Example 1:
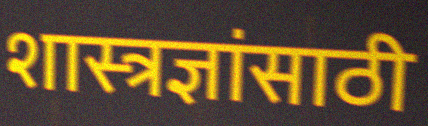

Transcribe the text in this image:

शास्त्रज्ञांसाठी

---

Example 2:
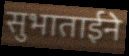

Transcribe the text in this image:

सुभाताईने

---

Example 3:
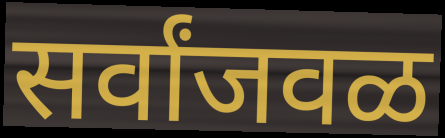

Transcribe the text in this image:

सर्वांजवळ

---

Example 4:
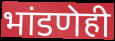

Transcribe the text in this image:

भांडणेही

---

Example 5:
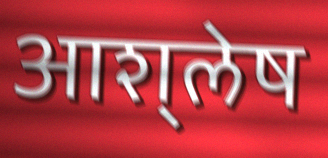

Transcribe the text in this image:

आश्लेष